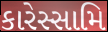
કારેસ્સામિ